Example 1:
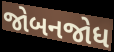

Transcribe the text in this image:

જોબનજોધ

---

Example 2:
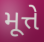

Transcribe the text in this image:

મૂત્તે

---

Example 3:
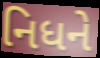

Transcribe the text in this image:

નિધને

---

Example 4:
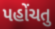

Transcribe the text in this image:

પહોંચતુ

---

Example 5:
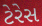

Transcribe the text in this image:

ટેરેસ